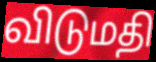
விடுமதி